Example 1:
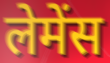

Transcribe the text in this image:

लेमेंस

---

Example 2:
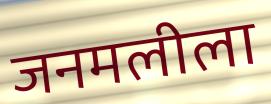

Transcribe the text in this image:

जनमलीला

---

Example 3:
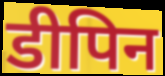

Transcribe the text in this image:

डीपिन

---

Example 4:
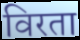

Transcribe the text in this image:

विरता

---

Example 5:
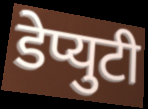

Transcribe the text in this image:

डेप्युटी